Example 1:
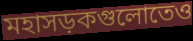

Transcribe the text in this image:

মহাসড়কগুলোতেও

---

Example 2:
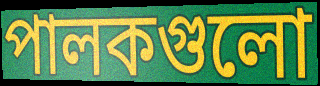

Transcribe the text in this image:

পালকগুলো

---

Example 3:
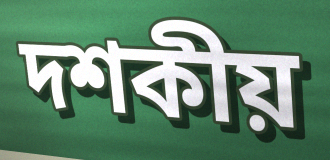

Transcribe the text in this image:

দশকীয়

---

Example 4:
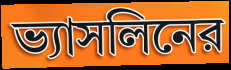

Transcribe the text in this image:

ভ্যাসলিনের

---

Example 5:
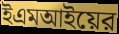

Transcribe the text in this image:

ইএমআইয়ের